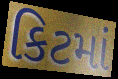
કિટમાં